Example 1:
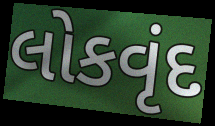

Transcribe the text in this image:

લોકવૃંદ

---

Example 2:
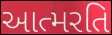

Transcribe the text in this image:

આત્મરતિ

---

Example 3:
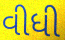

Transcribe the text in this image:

વીધી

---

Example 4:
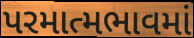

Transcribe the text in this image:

પરમાત્મભાવમાં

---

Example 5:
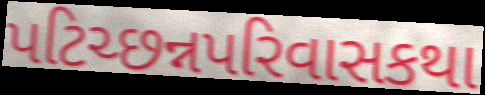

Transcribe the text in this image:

પટિચ્છન્નપરિવાસકથા